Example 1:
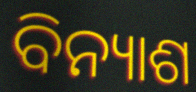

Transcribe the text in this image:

ବିନ୍ୟାଶ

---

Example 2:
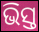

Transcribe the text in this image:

ଭିସ୍ତ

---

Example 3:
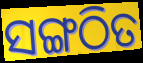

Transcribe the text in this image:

ସଙ୍ଗଠିତ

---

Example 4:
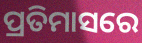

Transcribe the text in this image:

ପ୍ରତିମାସରେ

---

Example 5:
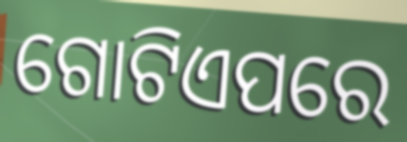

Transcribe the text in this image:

ଗୋଟିଏପରେ